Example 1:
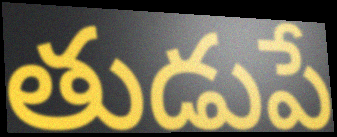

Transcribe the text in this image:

తుడుపే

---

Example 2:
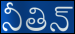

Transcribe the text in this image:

నీతిన్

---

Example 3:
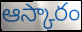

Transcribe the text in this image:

ఆస్కారం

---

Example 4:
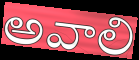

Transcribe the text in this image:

అవాలి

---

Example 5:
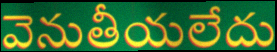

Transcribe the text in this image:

వెనుతీయలేదు